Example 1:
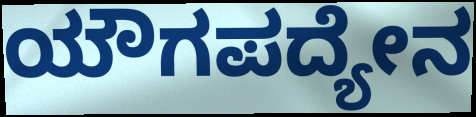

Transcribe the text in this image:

ಯೌಗಪದ್ಯೇನ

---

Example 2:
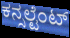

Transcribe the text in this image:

ಕನ್ಸಲ್ಟೆಂಟ್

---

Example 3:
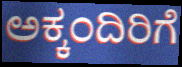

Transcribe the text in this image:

ಅಕ್ಕಂದಿರಿಗೆ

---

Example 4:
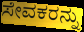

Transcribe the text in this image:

ಸೇವಕರನ್ನು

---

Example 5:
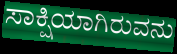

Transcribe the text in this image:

ಸಾಕ್ಷಿಯಾಗಿರುವನು